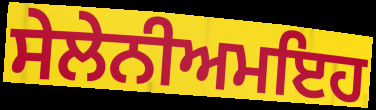
ਸੇਲੇਨੀਅਮਇਹ